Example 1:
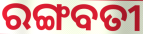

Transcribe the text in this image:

ରଙ୍ଗବତୀ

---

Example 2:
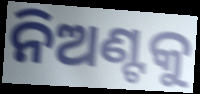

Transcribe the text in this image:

ନିଅଣ୍ଟକୁ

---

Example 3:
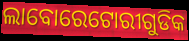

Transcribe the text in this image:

ଲାବୋରେଟୋରୀଗୁଡିକ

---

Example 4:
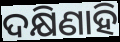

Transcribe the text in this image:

ଦକ୍ଷିଣାହି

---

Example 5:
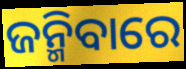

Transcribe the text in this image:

ଜନ୍ମିବାରେ